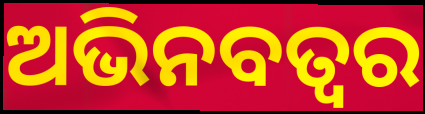
ଅଭିନବତ୍ୱର